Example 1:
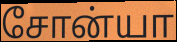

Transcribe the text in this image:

சோன்யா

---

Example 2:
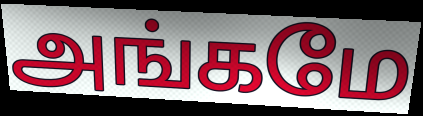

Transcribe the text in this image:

அங்கமே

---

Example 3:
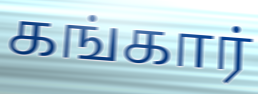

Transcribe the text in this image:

கங்கார்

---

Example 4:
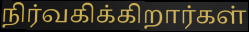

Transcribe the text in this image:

நிர்வகிக்கிறார்கள்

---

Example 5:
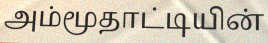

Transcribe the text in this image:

அம்மூதாட்டியின்